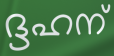
ദ്ദഹന്